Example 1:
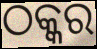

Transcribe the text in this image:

ଠକ୍କର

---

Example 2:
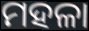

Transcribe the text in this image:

ମହଳା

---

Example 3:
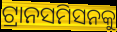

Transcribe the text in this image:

ଟ୍ରାନସମିସନକୁ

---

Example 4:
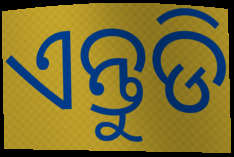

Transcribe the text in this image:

ଏନ୍ତୁଡି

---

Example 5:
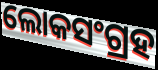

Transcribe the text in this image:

ଲୋକସଂଗ୍ରହ